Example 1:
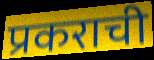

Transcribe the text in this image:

प्रकराची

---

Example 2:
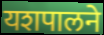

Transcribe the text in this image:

यशपालने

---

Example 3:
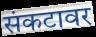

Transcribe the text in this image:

संकटावर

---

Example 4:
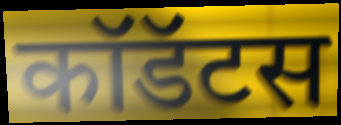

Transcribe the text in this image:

कॉडॅटस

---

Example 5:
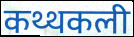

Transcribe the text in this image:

कथ्थकली